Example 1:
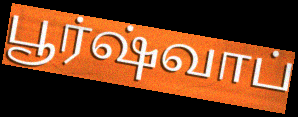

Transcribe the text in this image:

பூர்ஷ்வாப்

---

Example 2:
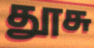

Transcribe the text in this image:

தூசு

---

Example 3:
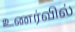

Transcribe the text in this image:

உணர்வில்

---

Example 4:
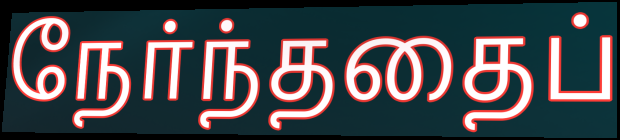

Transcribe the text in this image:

நேர்ந்ததைப்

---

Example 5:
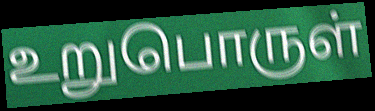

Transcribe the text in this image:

உறுபொருள்